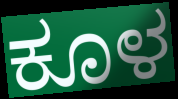
ಕೂಳ